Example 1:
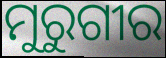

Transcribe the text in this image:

ମୁରୁଗୀର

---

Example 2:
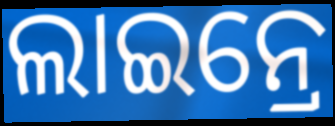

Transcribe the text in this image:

ଲାଇନ୍ରେ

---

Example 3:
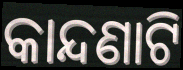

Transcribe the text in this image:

କାନ୍ଦଣାଟି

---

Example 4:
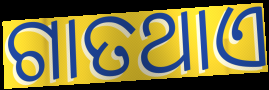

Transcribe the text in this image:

ଗାତଥାଏ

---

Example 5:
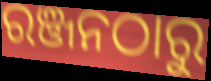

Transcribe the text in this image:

ରଞ୍ଜନଠାରୁ